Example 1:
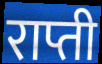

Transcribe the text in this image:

राप्ती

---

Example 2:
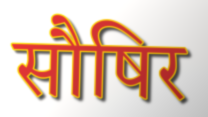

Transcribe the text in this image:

सौषिर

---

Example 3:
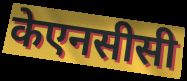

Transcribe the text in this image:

केएनसीसी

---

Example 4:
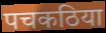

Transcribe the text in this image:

पचकठिया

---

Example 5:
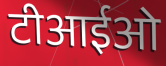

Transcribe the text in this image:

टीआईओ